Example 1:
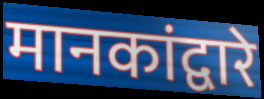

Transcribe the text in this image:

मानकांद्वारे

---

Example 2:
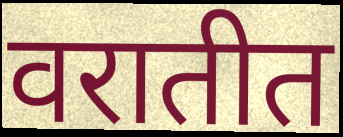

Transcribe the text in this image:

वरातीत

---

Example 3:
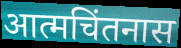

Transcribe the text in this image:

आत्मचिंतनास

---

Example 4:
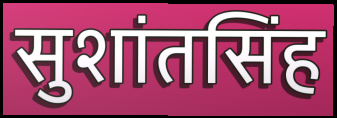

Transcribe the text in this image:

सुशांतसिंह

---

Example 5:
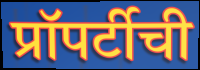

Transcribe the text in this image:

प्रॉपर्टीची